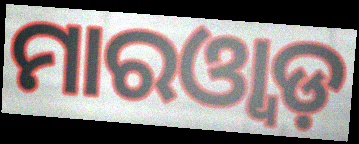
ମାରଓ୍ୱାଡ଼